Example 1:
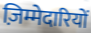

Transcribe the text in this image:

ज़िम्मेदारियों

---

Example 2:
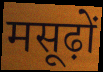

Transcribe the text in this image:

मसूढ़ों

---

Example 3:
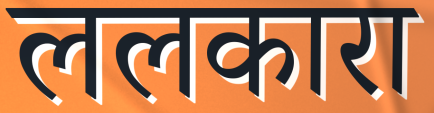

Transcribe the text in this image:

ललकारा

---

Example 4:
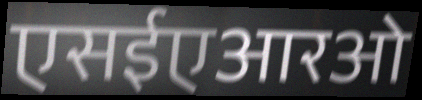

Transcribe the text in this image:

एसईएआरओ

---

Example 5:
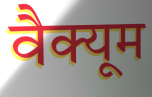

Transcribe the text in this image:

वैक्‍यूम